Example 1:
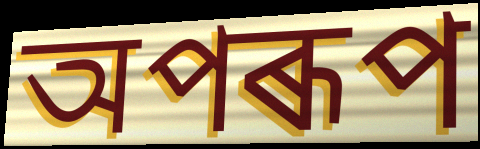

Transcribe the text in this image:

অপৰূপ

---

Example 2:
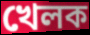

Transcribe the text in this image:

খেলক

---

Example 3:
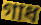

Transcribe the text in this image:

গাধ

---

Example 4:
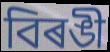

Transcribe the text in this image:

বিৰঙী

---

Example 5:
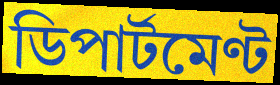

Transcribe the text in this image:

ডিপাৰ্টমেণ্ট